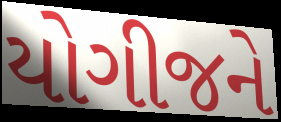
યોગીજને